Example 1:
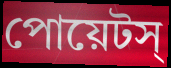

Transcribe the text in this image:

পোয়েটস্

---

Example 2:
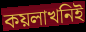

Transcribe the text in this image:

কয়লাখনিই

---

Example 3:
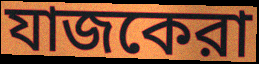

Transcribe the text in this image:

যাজকেরা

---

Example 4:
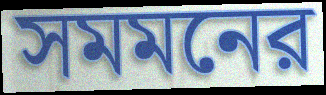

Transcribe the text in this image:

সমমনের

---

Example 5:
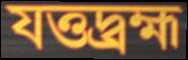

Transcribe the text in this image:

যত্তদ্ব্রহ্ম